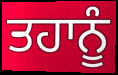
ਤਹਾਨੂੰ